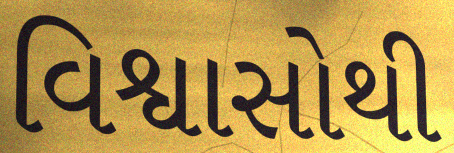
વિશ્વાસોથી